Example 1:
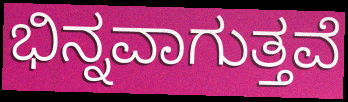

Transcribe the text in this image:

ಭಿನ್ನವಾಗುತ್ತವೆ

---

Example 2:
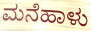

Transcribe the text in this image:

ಮನೆಹಾಳು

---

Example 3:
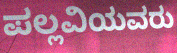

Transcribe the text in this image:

ಪಲ್ಲವಿಯವರು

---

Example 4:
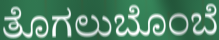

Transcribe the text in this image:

ತೊಗಲುಬೊಂಬೆ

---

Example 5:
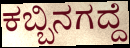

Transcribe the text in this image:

ಕಬ್ಬಿನಗದ್ದೆ